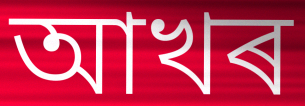
আখৰ